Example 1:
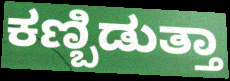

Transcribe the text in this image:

ಕಣ್ಬಿಡುತ್ತಾ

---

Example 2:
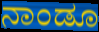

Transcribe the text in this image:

ನಾಂಡೂ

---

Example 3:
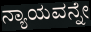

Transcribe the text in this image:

ನ್ಯಾಯವನ್ನೇ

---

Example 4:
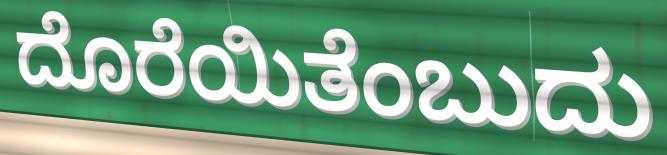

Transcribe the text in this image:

ದೊರೆಯಿತೆಂಬುದು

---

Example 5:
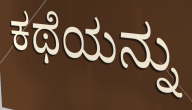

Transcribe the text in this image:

ಕಥೆಯನ್ನು